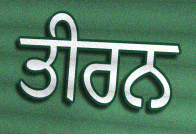
ਤੀਰਨ